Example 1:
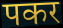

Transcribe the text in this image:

पकर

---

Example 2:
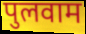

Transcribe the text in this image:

पुलवाम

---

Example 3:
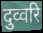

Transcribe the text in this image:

दुव्वरि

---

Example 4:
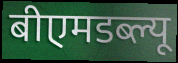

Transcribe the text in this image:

बीएमडब्ल्यू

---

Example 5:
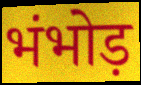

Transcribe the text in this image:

भंभोड़